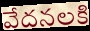
వేదనలకి